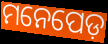
ମନେପେଡ଼